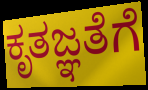
ಕೃತಜ್ಞತೆಗೆ